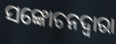
ସଙ୍କୋଚନଦ୍ୱାରା